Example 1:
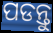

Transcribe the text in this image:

ପଡନ୍ତୁ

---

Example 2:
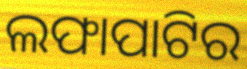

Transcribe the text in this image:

ଲଫାପାଟିର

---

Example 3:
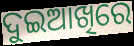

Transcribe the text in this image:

ଦୁଇଆଖିରେ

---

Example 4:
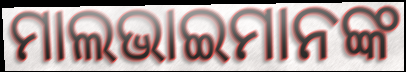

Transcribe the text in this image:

ମାଲଭାଇମାନଙ୍କ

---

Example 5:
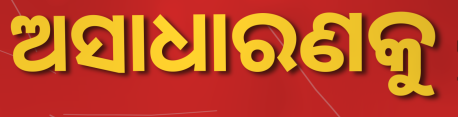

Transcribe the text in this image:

ଅସାଧାରଣକୁ